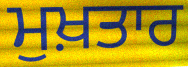
ਮੁਖ਼ਤਾਰ